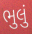
ભુલું